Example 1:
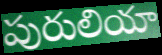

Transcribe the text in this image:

పురులియా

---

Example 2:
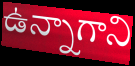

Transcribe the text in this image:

ఉన్నాగాని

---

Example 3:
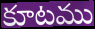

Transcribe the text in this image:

కూటము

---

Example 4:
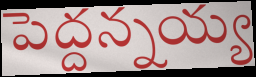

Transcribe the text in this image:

పెద్దన్నయ్య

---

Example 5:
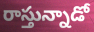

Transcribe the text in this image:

రాస్తున్నాడో